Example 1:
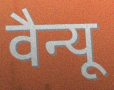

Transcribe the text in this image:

वैन्यू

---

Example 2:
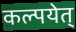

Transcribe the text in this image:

कल्पयेत्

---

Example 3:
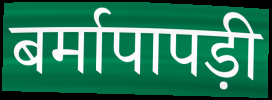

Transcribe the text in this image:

बर्मापापड़ी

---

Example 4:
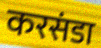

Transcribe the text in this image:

करसंडा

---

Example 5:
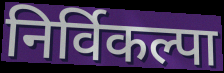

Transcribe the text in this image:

निर्विकल्पा